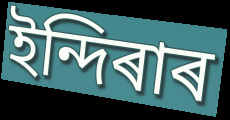
ইন্দিৰাৰ